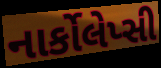
નાર્કોલેપ્સી